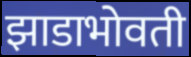
झाडाभोवती